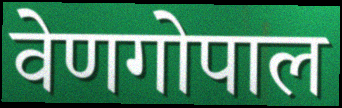
वेणगोपाल